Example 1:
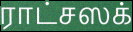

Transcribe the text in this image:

ராட்சஸக்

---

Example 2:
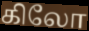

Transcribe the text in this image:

கிலோ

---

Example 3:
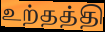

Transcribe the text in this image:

உற்தத்தி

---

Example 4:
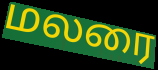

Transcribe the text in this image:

மலரை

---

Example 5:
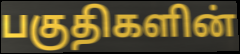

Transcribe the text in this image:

பகுதிகளின்